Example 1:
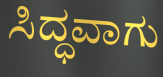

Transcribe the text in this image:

ಸಿದ್ಧವಾಗು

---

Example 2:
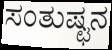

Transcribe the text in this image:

ಸಂತುಷ್ಟನ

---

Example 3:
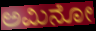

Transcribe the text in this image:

ಅಮಿನೋ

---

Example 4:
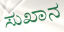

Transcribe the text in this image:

ಸುಖಾನ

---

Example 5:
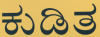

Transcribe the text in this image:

ಕುಡಿತ